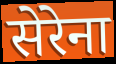
सेरेना